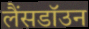
लैंसडॉउन